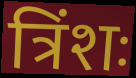
त्रिंशः